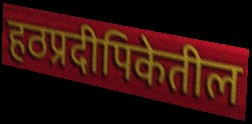
हठप्रदीपिकेतील